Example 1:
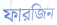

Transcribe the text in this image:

ফারজিন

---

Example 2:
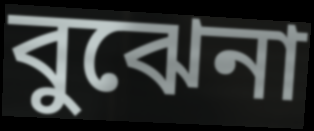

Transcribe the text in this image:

বুঝেনা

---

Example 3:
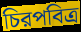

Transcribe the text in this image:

চিরপবিত্র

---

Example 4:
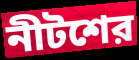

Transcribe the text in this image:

নীটশের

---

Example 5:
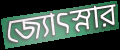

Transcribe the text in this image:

জ্যোৎস্নার